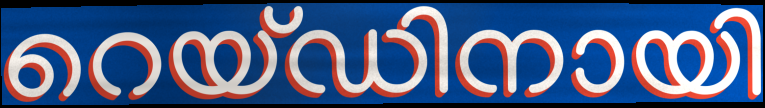
റെയ്ഡിനായി